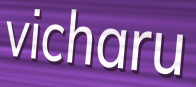
vicharu